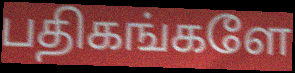
பதிகங்களே